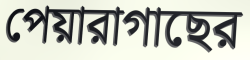
পেয়ারাগাছের